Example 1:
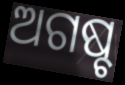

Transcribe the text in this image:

ଅଗଷ୍ଚ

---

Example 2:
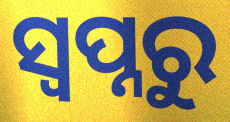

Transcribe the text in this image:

ସ୍ୱପ୍ନରୁ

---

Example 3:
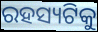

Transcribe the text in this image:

ରହସ୍ୟଟିକୁ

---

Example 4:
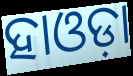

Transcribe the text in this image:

ହାଓଡ଼ା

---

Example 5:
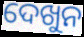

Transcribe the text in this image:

ଦେଖୁନ